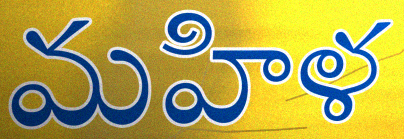
మహిళ